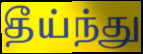
தீய்ந்து